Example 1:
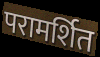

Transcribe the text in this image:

परामर्शित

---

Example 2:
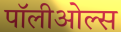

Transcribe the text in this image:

पॉलीओल्स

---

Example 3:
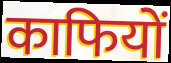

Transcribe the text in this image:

काफियों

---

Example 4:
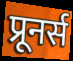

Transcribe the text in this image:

प्रूनर्स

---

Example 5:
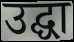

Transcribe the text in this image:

उद्घा